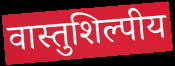
वास्तुशिल्पीय